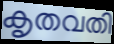
കൃതവതി